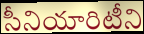
సీనియారిటీని